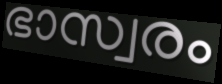
ഭാസ്വരം